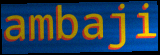
ambaji